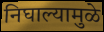
निघाल्यामुळे